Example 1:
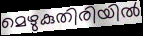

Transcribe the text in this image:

മെഴുകുതിരിയിൽ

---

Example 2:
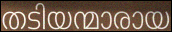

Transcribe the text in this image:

തടിയന്മാരായ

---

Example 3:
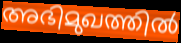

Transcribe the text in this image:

അഭിമുഖത്തിൽ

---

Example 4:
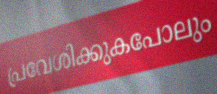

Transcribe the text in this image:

പ്രവേശിക്കുകപോലും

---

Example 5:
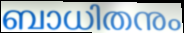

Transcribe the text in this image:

ബാധിതനും